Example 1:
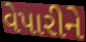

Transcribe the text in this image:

વેપારીને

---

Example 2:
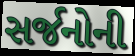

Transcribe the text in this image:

સર્જનોની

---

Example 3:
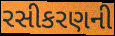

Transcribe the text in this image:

રસીકરણની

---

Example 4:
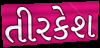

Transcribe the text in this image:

તીરકેશ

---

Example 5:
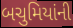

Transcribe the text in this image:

બચુમિયાંની